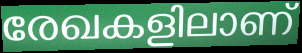
രേഖകളിലാണ്